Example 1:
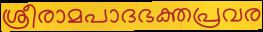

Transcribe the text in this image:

ശ്രീരാമപാദഭക്തപ്രവര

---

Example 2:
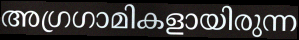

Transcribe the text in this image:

അഗ്രഗാമികളായിരുന്ന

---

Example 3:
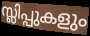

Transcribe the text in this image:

സ്ലിപ്പുകളും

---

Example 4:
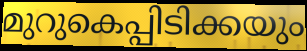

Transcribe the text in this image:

മുറുകെപ്പിടിക്കയും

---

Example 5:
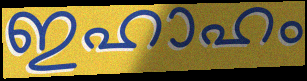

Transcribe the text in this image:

ഇഹാഹം